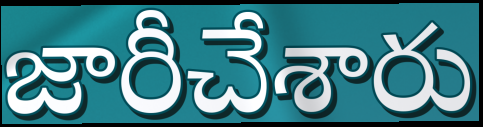
జారీచేశారు